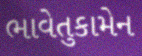
ભાવેતુકામેન